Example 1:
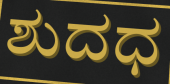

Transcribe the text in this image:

ಶುದಧ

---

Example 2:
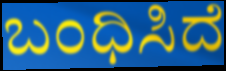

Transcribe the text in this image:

ಬಂಧಿಸಿದೆ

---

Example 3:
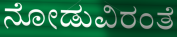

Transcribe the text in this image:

ನೋಡುವಿರಂತೆ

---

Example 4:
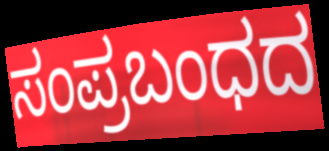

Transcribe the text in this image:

ಸಂಪ್ರಬಂಧದ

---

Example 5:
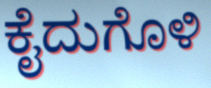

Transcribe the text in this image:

ಕೈದುಗೊಳಿ